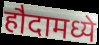
हौदामध्ये